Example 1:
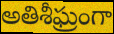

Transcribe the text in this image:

అతిశీఘ్రంగా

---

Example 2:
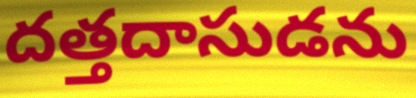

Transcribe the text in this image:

దత్తదాసుడను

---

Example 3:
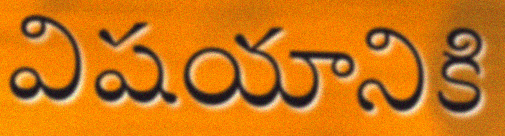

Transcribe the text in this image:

విషయానికి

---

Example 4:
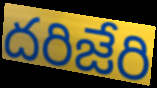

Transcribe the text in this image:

దరిజేరి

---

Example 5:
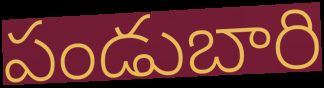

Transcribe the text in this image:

పండుబారి